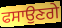
ਫਸਾਉਣਗੇ